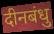
दीनबंधु